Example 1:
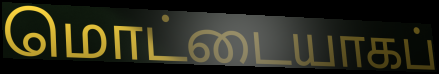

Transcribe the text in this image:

மொட்டையாகப்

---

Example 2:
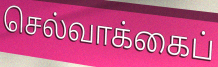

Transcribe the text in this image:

செல்வாக்கைப்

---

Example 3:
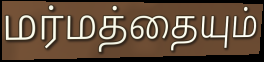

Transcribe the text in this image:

மர்மத்தையும்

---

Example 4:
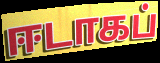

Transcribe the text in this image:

ஈடாகப்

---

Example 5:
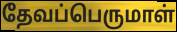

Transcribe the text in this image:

தேவப்பெருமாள்